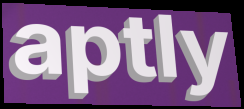
aptly